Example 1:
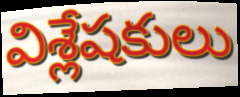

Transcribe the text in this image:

విశ్లేషకులు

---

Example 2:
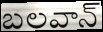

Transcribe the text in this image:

బలవాన్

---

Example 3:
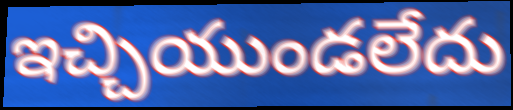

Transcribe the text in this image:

ఇచ్చియుండలేదు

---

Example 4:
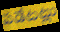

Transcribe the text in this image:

పడేటట్లు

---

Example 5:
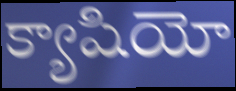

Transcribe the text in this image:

క్యాషియో